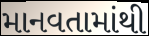
માનવતામાંથી